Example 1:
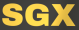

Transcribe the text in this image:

SGX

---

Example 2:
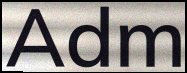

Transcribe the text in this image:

Adm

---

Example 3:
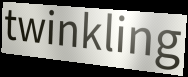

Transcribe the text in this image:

twinkling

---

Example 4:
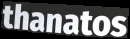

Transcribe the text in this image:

thanatos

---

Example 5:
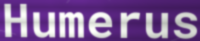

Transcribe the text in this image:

Humerus